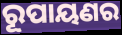
ରୂପାୟଣର